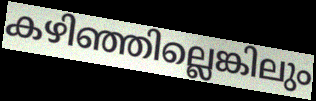
കഴിഞ്ഞില്ലെങ്കിലും